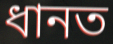
ধানত